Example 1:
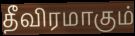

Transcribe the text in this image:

தீவிரமாகும்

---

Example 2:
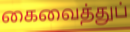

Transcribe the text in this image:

கைவைத்துப்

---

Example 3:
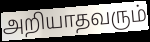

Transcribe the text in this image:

அறியாதவரும்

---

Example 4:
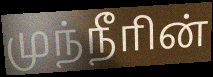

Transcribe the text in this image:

முந்நீரின்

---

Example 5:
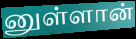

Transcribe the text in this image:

னுள்ளான்